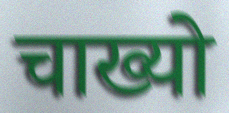
चाख्यो